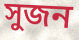
সুজন